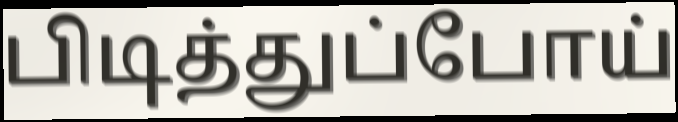
பிடித்துப்போய்